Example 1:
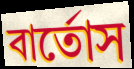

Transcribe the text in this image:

বার্তোস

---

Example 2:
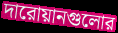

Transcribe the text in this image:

দারোয়ানগুলোর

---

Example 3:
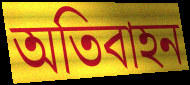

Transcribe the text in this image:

অতিবাহন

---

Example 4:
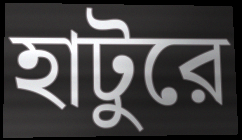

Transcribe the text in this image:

হাটুরে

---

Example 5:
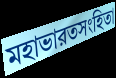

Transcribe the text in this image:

মহাভারতসংহিতা